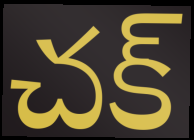
చక్